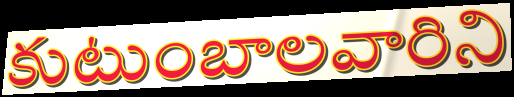
కుటుంబాలవారిని